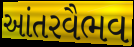
આંતરવૈભવ